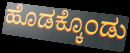
ಹೊಡಕ್ಕೊಂಡು